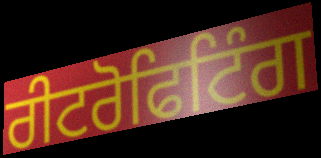
ਰੀਟਰੋਫਿਟਿੰਗ